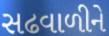
સઢવાળીને